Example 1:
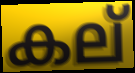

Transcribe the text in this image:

കല്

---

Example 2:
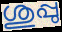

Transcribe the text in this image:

ശുപ്പു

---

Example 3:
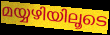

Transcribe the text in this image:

മയ്യഴിയിലൂടെ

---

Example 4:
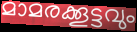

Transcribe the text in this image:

മാമരക്കൂട്ടവും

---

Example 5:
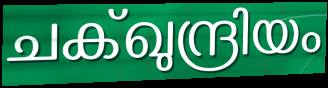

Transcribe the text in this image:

ചക്ഖുന്ദ്രിയം